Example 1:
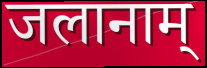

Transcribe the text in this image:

जलानाम्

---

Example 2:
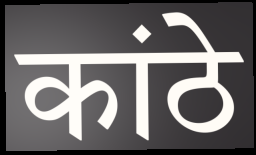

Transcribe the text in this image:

कांठे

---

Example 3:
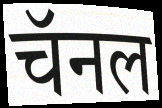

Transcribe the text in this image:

चॅनल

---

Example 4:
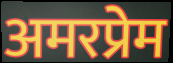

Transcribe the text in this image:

अमरप्रेम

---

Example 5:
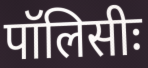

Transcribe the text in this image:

पॉलिसीः